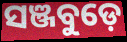
ସଞ୍ଜବୁଡ଼େ